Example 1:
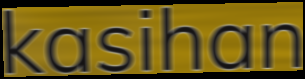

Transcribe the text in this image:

kasihan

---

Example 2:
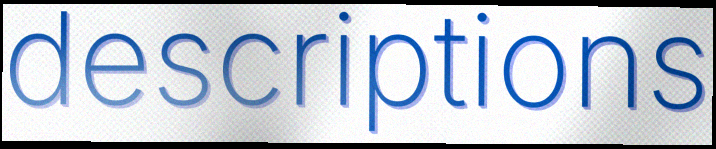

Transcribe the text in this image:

descriptions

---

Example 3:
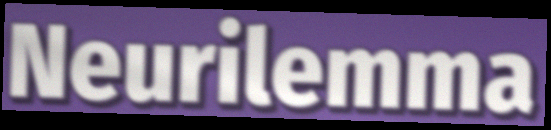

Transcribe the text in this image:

Neurilemma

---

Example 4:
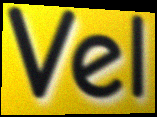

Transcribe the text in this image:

Vel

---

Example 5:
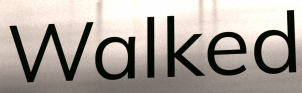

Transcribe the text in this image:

Walked